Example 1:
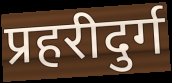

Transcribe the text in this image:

प्रहरीदुर्ग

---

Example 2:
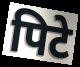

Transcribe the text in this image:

पिटे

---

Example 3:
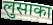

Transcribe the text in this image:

लुसाका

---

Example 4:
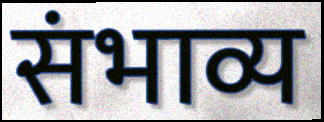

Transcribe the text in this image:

संभाव्य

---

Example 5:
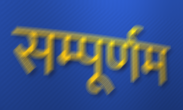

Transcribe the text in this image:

सम्पूर्णम